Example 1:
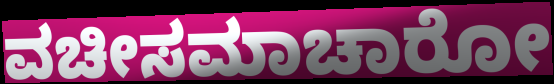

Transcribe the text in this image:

ವಚೀಸಮಾಚಾರೋ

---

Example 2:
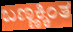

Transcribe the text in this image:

ಬಣ್ಣಕ್ಕಿಂತ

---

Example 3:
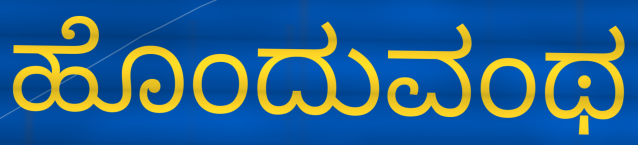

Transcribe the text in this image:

ಹೊಂದುವಂಥ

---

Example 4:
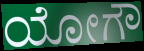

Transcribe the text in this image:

ಯೋಗೌ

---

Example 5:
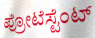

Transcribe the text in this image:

ಪ್ರೋಟೆಸ್ಟೆಂಟ್